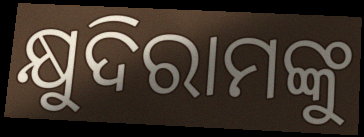
କ୍ଷୁଦିରାମଙ୍କୁ